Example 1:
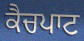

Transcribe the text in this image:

ਕੈਚਪਾਟ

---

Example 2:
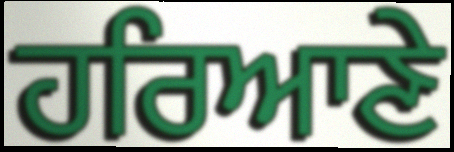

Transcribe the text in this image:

ਹਰਿਆਣੇ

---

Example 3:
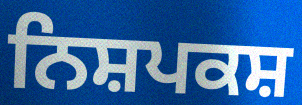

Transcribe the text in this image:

ਨਿਸ਼ਪਕਸ਼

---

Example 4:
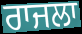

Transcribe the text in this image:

ਰਾਜਲਾ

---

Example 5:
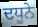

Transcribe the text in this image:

ਦਧੂਨੇ